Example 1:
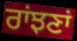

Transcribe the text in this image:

ਰਾਂਝਣਾਂ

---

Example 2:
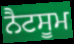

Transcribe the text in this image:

ਨੈਟਸੂਮ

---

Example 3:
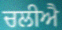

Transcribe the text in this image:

ਚਲੀਐ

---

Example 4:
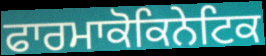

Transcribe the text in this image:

ਫਾਰਮਾਕੋਕਿਨੇਟਿਕ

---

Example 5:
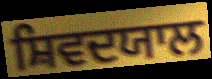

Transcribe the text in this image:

ਸ਼ਿਵਦਯਾਲ